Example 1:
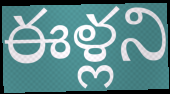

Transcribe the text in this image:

ఈళ్లని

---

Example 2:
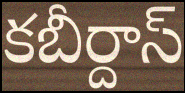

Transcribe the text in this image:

కబీర్దాస్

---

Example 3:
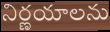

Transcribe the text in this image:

నిర్ణయాలను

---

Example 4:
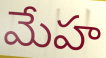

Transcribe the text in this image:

మేహ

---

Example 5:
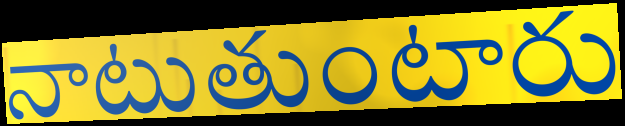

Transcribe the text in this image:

నాటుతుంటారు